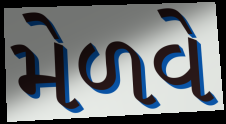
મેળવે